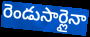
రెండుసార్లైనా